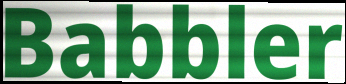
Babbler